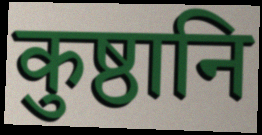
कुष्ठानि